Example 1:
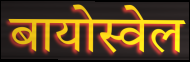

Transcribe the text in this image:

बायोस्वेल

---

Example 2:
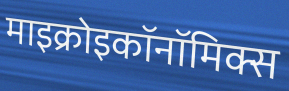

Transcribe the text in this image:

माइक्रोइकॉनॉमिक्स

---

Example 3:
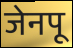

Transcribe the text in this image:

जेनपू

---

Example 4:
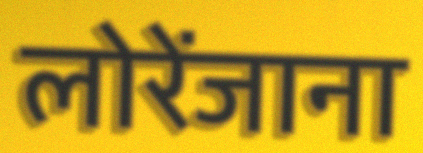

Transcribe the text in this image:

लोरेंजाना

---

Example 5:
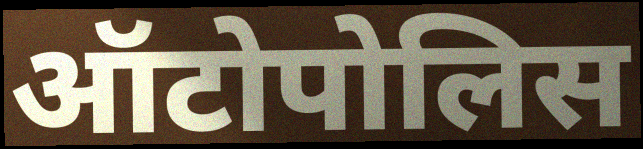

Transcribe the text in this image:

ऑटोपोलिस